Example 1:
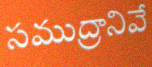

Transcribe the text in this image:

సముద్రానివే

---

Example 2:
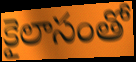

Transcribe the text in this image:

కైలాసంతో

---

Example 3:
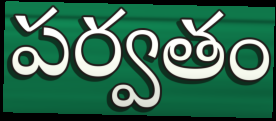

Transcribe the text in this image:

పర్వతం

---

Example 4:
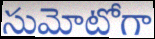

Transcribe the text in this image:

సుమోటోగా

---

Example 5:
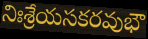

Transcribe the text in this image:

నిఃశ్రేయసకరవుభౌ